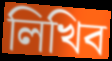
লিখিব